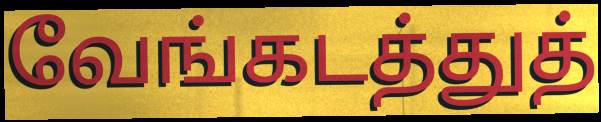
வேங்கடத்துத்